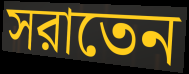
সরাতেন